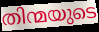
തിന്മയുടെ